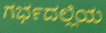
ಗರ್ಭದಲ್ಲಿಯ